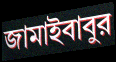
জামাইবাবুর